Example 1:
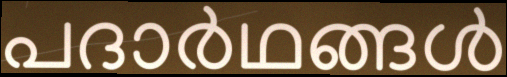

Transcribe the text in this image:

പദാർഥങ്ങൾ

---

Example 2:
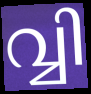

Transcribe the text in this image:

വ്വി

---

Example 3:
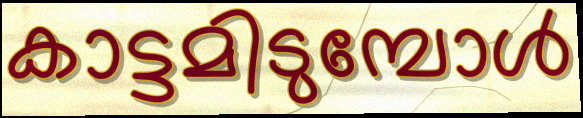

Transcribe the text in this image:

കാട്ടമിടുമ്പോൾ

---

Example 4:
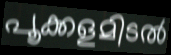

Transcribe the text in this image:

പൂക്കളമിടൽ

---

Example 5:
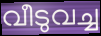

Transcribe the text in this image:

വീടുവച്ച